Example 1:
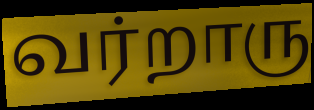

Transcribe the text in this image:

வர்றாரு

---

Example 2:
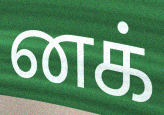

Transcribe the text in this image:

னக்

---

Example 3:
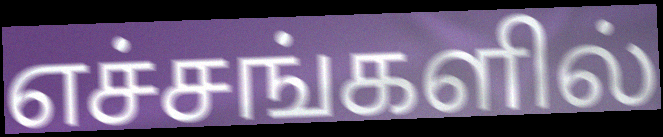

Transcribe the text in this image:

எச்சங்களில்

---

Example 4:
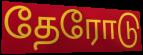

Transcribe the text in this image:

தேரோடு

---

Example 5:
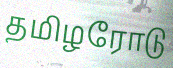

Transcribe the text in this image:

தமிழரோடு